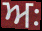
ਅਃ